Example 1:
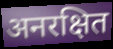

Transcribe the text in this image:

अनरक्षित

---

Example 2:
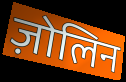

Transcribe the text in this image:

ज़ोलिन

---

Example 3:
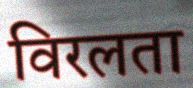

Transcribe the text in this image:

विरलता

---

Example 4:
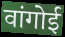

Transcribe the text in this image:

वांगोई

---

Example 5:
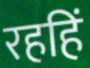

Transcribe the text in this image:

रहहिं